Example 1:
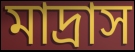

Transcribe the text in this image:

মাদ্রাস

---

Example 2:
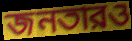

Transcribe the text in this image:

জনতারও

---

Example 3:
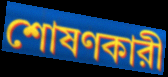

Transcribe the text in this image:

শোষণকারী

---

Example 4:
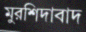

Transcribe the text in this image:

মুরশিদাবাদ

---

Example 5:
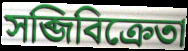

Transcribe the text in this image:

সব্জিবিক্রেতা